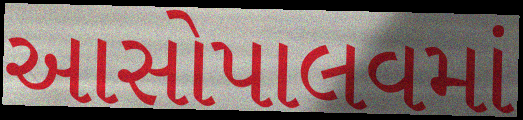
આસોપાલવમાં